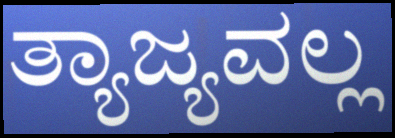
ತ್ಯಾಜ್ಯವಲ್ಲ